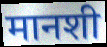
मानशी